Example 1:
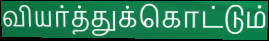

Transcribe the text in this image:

வியர்த்துக்கொட்டும்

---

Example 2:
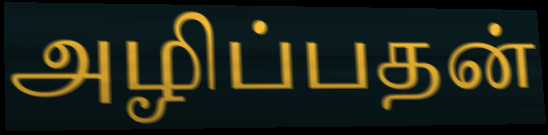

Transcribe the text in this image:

அழிப்பதன்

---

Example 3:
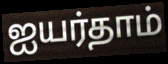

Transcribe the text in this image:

ஐயர்தாம்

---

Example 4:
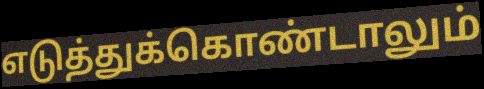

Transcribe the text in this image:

எடுத்துக்கொண்டாலும்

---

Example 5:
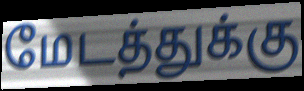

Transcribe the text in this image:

மேடத்துக்கு